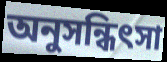
অনুসন্ধিৎসা